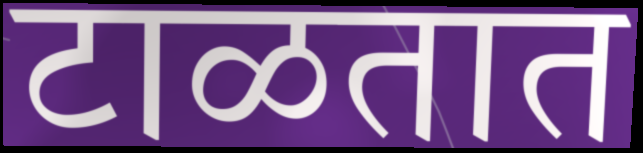
टाळतात